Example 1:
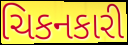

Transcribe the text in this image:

ચિકનકારી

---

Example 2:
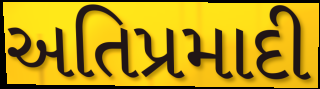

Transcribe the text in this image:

અતિપ્રમાદી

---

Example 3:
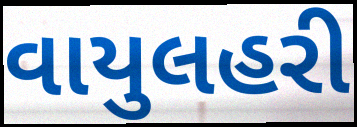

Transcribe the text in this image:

વાયુલહરી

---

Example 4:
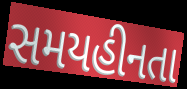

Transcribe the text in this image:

સમયહીનતા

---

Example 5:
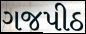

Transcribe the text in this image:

ગજપીઠ